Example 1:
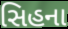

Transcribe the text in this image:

સિહના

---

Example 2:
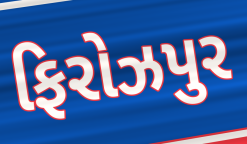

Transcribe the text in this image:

ફિરોઝપુર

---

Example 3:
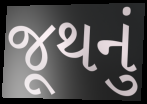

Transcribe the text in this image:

જૂથનું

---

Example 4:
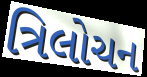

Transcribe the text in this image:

ત્રિલોચન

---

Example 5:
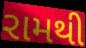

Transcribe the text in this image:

રામથી